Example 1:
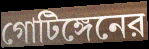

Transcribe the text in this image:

গোটিঙ্গেনের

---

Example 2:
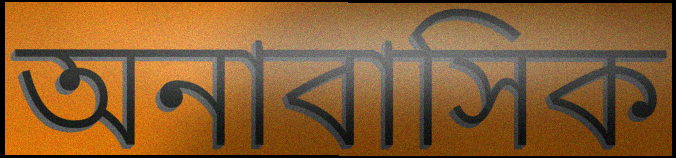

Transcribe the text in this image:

অনাবাসিক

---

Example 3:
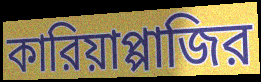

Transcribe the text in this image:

কারিয়াপ্পাজির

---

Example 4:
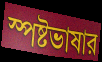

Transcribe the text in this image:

স্পষ্টভাষার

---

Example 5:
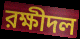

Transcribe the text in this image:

রক্ষীদল